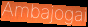
Ambajogai